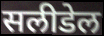
सलीडेल